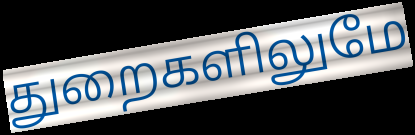
துறைகளிலுமே